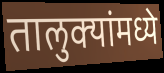
तालुक्यांमध्ये